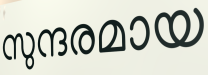
സുന്ദരമായ